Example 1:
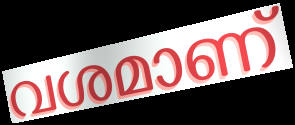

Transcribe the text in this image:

വശമാണ്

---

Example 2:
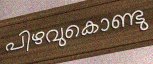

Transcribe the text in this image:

പിഴവുകൊണ്ടു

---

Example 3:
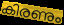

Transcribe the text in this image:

കിരണും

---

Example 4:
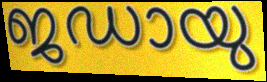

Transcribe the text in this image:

ജഡായു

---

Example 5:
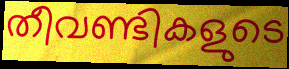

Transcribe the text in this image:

തീവണ്ടികളുടെ